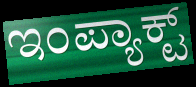
ಇಂಪ್ಯಾಕ್ಟ್